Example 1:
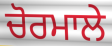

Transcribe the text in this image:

ਚੋਰਮਾਲੇ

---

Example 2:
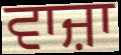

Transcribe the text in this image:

ਵਾਜ਼ਾ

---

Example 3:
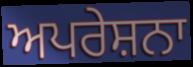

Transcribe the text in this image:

ਅਪਰੇਸ਼ਨਾ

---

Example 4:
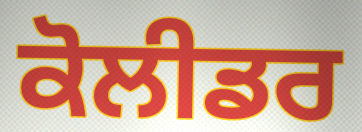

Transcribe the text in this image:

ਕੋਲੀਡਰ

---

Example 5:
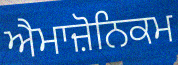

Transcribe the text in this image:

ਐਮਾਜ਼ੋਨਿਕਮ